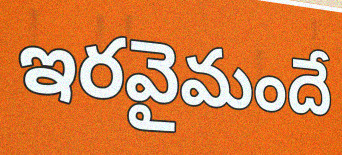
ఇరవైమందే